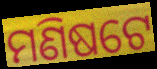
ମଣିଷଟେ